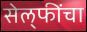
सेल्फींचा